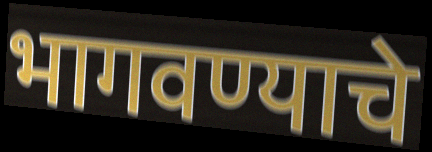
भागवण्याचे